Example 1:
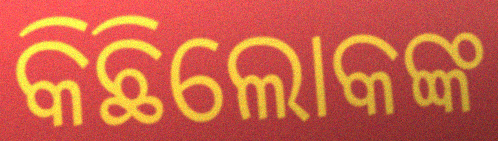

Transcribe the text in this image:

କିଛିଲୋକଙ୍କ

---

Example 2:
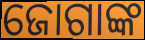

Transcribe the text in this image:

ଜୋଗାଙ୍କ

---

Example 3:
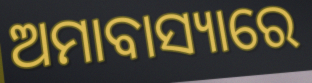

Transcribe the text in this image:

ଅମାବାସ୍ୟାରେ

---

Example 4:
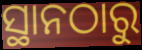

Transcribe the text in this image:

ସ୍ଥାନଠାରୁ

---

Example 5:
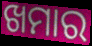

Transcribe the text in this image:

ଖମାର